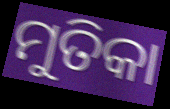
ମୁତିକା